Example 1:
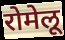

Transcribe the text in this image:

रोमेलू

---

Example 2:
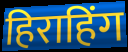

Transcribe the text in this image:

हिराहिंग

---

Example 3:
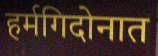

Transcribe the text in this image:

हर्मगिदोनात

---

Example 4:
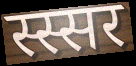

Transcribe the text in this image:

स्स्सर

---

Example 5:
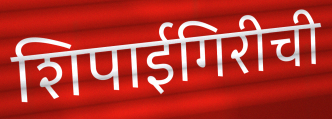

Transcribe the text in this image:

शिपाईगिरीची